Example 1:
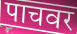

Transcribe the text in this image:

पाचवर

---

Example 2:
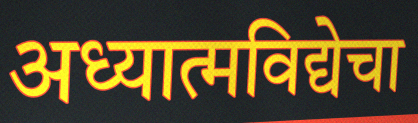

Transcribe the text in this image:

अध्यात्मविद्येचा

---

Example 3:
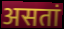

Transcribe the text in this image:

असतां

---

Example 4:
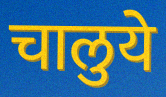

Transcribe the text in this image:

चालुये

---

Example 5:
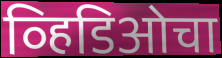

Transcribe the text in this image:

व्हिडिओचा